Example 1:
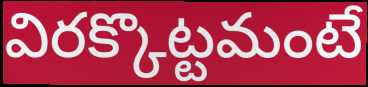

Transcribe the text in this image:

విరక్కొట్టమంటే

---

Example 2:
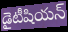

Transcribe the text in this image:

డైటీషియన్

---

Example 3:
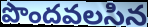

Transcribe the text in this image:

పొందవలసిన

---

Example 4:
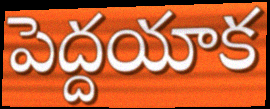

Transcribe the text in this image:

పెద్దయాక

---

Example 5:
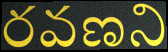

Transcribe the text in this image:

రవణని